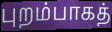
புறம்பாகத்